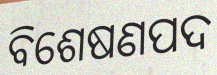
ବିଶେଷଣପଦ